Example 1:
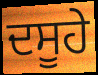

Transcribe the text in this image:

ਦਸੂਹੇ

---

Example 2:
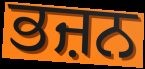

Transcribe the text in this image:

ਭਜ਼ਨ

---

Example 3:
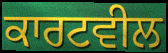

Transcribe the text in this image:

ਕਾਰਟਵੀਲ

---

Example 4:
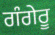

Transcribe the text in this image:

ਗੰਗੇਰੂ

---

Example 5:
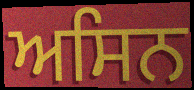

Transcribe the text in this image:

ਅਸਿਨ